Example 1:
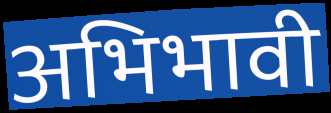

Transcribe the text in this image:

अभिभावी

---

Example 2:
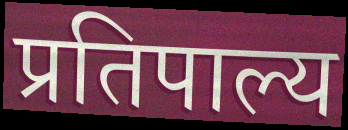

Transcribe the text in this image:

प्रतिपाल्य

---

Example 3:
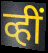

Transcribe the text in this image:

व्हीं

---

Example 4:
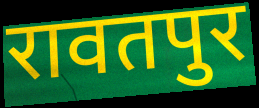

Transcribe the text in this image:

रावतपुर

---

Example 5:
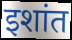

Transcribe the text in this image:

इशांत